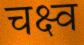
चक्ष्व